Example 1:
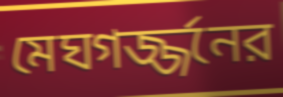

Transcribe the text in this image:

মেঘগর্জ্জনের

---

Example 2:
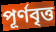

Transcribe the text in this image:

পূর্ণবৃত্ত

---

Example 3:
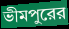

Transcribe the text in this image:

ভীমপুরের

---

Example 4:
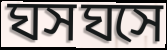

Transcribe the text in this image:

ঘসঘসে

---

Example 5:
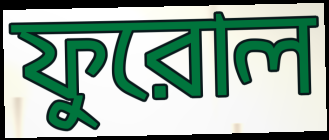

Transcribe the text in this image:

ফুরোল